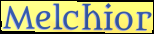
Melchior